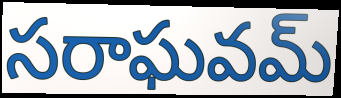
సరాఘవమ్